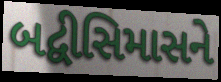
બદ્વીસિમાસને